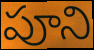
పూని